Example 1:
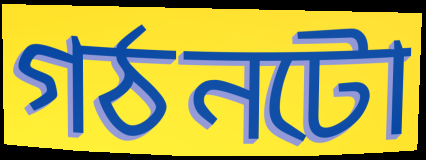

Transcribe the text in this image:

গঠনটো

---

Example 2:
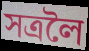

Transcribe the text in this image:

সত্ৰলৈ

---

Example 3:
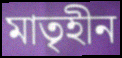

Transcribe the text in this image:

মাতৃহীন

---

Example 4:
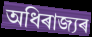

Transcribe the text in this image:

অধিৰাজ্যৰ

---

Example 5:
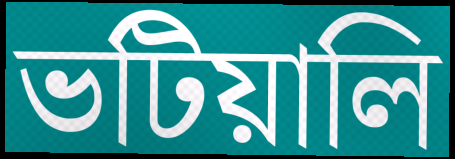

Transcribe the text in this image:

ভটিয়ালি